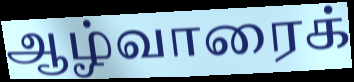
ஆழ்வாரைக்